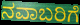
ನವಾಬರಿಗೆ